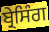
ਬ੍ਰੇਸਿੰਗ